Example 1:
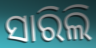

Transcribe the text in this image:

ସାରିଲି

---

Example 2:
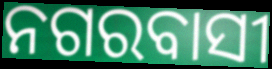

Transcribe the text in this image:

ନଗରବାସୀ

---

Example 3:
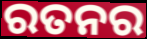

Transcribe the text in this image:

ରତନର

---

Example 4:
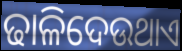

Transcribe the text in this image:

ଢାଳିଦେଉଥାଏ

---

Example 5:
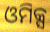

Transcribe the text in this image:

ଓମିକ୍ସ